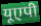
यूएपी